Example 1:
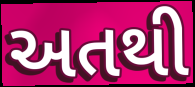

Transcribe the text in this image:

અતથી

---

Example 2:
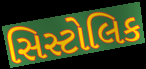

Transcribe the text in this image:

સિસ્ટોલિક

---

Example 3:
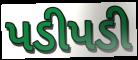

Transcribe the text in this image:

પડીપડી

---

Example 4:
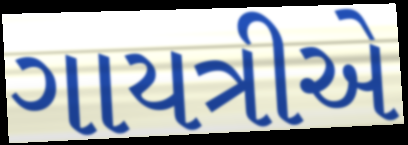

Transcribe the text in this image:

ગાયત્રીએ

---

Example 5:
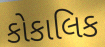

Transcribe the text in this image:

કોકાલિક